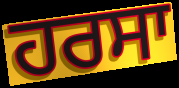
ਹਰਸਾ